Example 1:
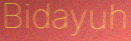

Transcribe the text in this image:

Bidayuh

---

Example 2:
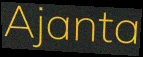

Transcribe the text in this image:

Ajanta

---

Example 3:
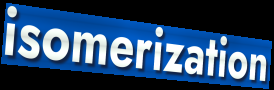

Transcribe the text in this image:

isomerization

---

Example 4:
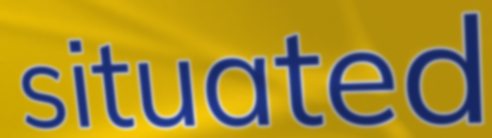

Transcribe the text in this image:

situated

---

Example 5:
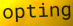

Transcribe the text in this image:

opting